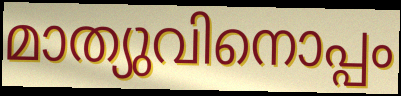
മാത്യുവിനൊപ്പം